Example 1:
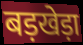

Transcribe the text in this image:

बड़खेड़ा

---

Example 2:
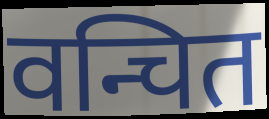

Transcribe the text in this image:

वन्चित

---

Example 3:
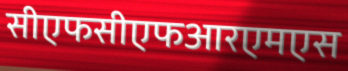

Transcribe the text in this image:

सीएफसीएफआरएमएस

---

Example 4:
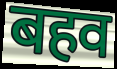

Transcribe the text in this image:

बहव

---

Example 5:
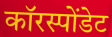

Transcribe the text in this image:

कॉरस्पोंडेट